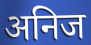
अनिज